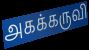
அகக்கருவி